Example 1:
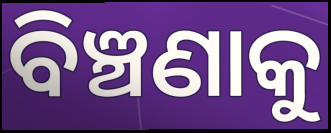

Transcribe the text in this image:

ବିଞ୍ଚଣାକୁ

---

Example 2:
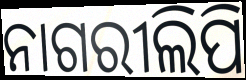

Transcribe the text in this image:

ନାଗରୀଲିପି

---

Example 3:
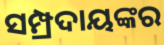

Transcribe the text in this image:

ସମ୍ପ୍ରଦାୟଙ୍କର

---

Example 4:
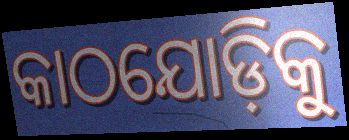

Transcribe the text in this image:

କାଠଯୋଡ଼ିକୁ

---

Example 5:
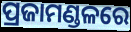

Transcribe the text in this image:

ପ୍ରଜାମଣ୍ଡଳରେ